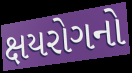
ક્ષયરોગનો